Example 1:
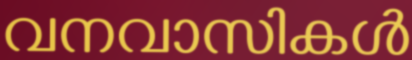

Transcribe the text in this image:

വനവാസികൾ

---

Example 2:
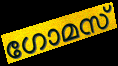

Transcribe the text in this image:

ഗോമസ്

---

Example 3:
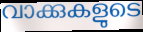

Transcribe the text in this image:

വാക്കുകളുടെ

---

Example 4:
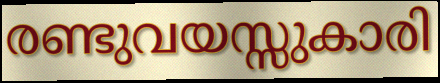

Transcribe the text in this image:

രണ്ടുവയസ്സുകാരി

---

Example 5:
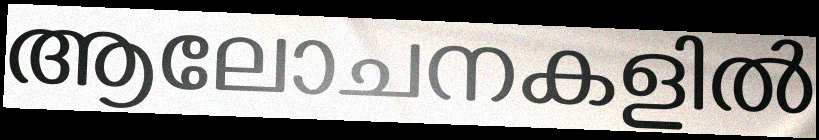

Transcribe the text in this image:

ആലോചനകളിൽ